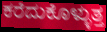
ಕರೆದುಕೊಳ್ಳುತ್ತ